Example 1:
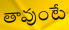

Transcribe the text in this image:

తావుంటే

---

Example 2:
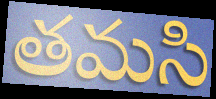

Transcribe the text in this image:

తమసి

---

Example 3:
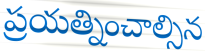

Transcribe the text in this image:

ప్రయత్నించాల్సిన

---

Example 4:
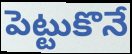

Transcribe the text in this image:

పెట్టుకొనే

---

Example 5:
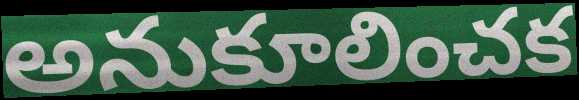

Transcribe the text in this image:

అనుకూలించక